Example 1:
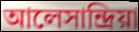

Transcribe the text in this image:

আলেসান্দ্রিয়া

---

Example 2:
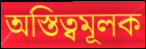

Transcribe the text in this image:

অস্তিত্বমূলক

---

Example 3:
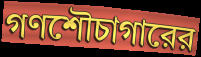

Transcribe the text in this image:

গণশৌচাগারের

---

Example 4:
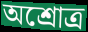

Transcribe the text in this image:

অশ্রোত্র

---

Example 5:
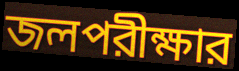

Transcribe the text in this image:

জলপরীক্ষার